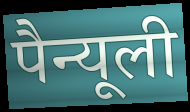
पैन्यूली